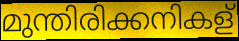
മുന്തിരിക്കനികള്